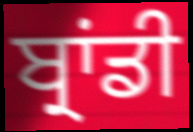
ਬ੍ਰਾਂਡੀ